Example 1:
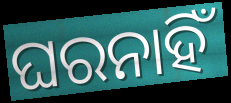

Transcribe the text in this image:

ଘରନାହିଁ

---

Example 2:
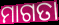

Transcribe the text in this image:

ମାଗତା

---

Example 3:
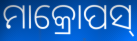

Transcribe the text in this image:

ମାକ୍ରୋପସ୍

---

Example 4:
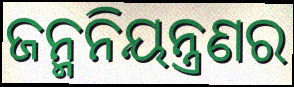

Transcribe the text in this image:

ଜନ୍ମନିୟନ୍ତ୍ରଣର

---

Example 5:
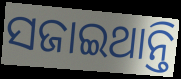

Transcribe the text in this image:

ସଜାଇଥାନ୍ତି